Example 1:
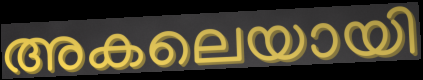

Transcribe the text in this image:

അകലെയായി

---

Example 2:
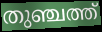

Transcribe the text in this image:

തുഞ്ചത്ത്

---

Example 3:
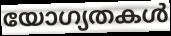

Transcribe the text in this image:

യോഗ്യതകൾ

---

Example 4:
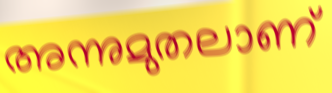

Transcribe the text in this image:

അന്നുമുതലാണ്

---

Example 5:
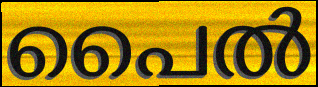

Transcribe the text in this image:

പൈൽ